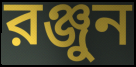
রঞ্জুন